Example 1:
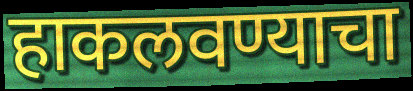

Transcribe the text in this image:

हाकलवण्याचा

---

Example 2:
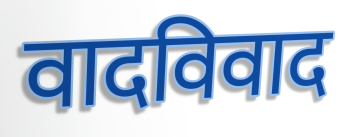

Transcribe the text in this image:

वादविवाद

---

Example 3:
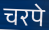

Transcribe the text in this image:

चरपे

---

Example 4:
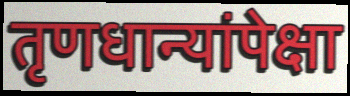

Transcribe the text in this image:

तृणधान्यांपेक्षा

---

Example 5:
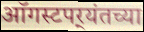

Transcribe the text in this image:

ऑगस्टपर्यंतच्या